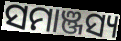
ସମାଞ୍ଜସ୍ୟ